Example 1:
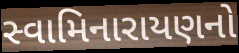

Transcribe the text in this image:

સ્વામિનારાયણનો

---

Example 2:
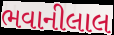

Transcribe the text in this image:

ભવાનીલાલ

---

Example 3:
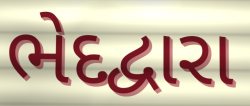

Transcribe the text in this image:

ભેદદ્વારા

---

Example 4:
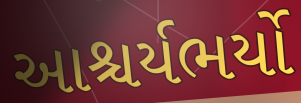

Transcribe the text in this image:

આશ્ચર્યભર્યો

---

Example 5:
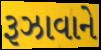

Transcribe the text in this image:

રૂઝાવાને